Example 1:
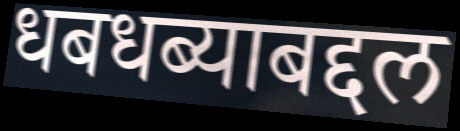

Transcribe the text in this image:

धबधब्याबद्दल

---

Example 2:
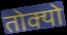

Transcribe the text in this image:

तोक्यो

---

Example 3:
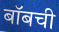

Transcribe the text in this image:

बॉबची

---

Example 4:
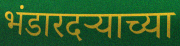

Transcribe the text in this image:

भंडारदर्‍याच्या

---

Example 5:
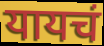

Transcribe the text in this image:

यायचं